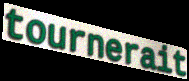
tournerait